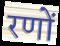
रणों